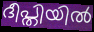
ദീപ്തിയിൽ